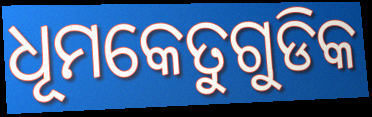
ଧୂମକେତୁଗୁଡିକ